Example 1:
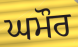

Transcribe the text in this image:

ਘਮੌਰ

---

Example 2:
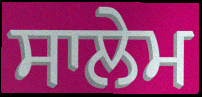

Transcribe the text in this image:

ਸਾਲੇਮ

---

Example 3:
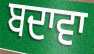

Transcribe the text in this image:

ਬਦਾਵਾ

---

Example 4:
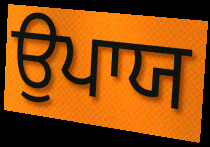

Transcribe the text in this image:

ਉਪਾਯ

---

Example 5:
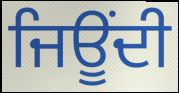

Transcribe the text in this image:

ਜਿਊਂਦੀ